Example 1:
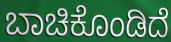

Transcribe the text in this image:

ಬಾಚಿಕೊಂಡಿದೆ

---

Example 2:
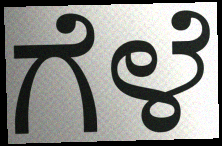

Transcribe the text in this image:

ಗೆಳೆ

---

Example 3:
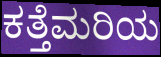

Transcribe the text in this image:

ಕತ್ತೆಮರಿಯ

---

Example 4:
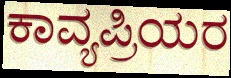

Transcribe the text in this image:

ಕಾವ್ಯಪ್ರಿಯರ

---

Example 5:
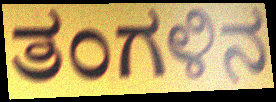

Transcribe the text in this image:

ತಂಗಳಿನ